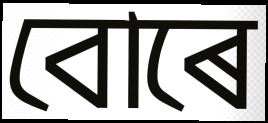
বোৰে